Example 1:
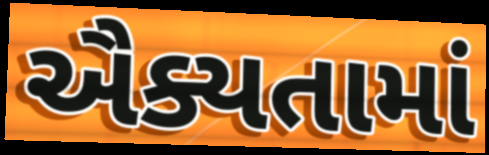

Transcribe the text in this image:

ઐક્યતામાં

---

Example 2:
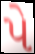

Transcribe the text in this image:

પે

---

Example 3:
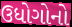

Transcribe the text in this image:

ઉધોગોનો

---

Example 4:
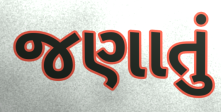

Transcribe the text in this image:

જણાતું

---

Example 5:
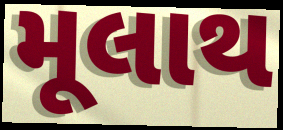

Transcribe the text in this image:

મૂલાથ